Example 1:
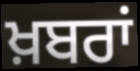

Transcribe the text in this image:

ਖ਼ਬਰਾਂ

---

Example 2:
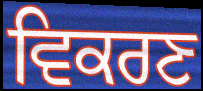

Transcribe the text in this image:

ਵਿਕਰਣ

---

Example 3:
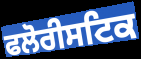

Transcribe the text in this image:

ਫਲੋਰੀਸਟਿਕ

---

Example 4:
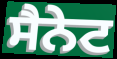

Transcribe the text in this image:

ਸੈਨੇਟ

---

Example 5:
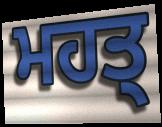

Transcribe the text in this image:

ਮਹਤ੍